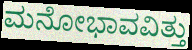
ಮನೋಭಾವವಿತ್ತು